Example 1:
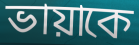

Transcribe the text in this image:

ভায়াকে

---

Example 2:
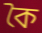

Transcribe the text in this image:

কৈ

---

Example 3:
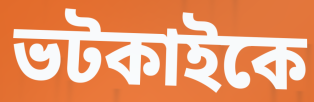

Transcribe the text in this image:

ভটকাইকে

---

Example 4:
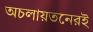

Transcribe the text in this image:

অচলায়তনেরই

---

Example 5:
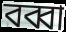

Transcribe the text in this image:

বব্বা